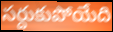
సర్దుకుపోయేది